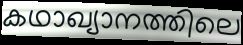
കഥാഖ്യാനത്തിലെ